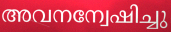
അവനന്വേഷിച്ചു